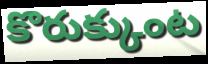
కొరుక్కుంట